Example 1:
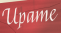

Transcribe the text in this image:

Upame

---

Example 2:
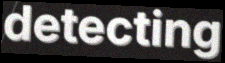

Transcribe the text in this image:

detecting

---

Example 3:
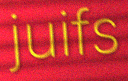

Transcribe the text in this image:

juifs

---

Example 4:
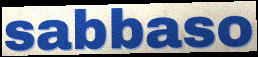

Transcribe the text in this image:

sabbaso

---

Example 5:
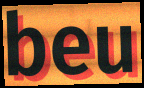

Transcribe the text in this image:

beu